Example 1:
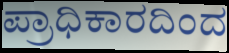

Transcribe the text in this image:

ಪ್ರಾಧಿಕಾರದಿಂದ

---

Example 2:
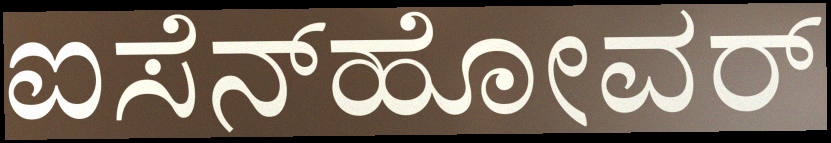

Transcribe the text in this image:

ಐಸೆನ್‍ಹೋವರ್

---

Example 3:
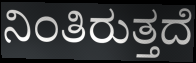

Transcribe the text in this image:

ನಿಂತಿರುತ್ತದೆ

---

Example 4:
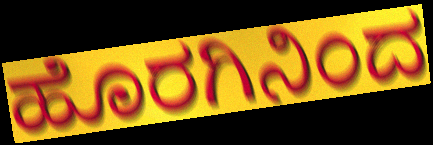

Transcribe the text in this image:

ಹೊರಗಿನಿಂದ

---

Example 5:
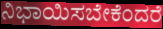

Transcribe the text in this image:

ನಿಭಾಯಿಸಬೇಕೆಂದರೆ